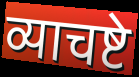
व्याचष्टे